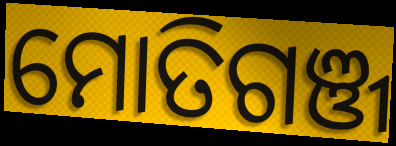
ମୋତିଗଞ୍ଜ